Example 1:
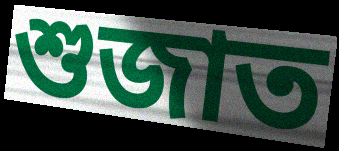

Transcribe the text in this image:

শুজাত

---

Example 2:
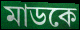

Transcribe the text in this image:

মাডকে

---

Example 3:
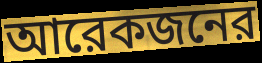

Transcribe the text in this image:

আরেকজনের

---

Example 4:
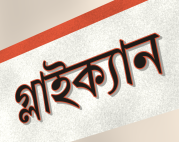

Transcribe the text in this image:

গ্লাইক্যান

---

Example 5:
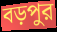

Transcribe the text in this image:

বড়পুর